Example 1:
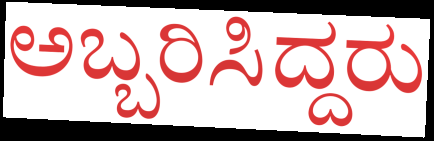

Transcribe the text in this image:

ಅಬ್ಬರಿಸಿದ್ದರು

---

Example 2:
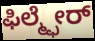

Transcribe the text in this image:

ಫಿಲ್ಮ್ಫೇರ್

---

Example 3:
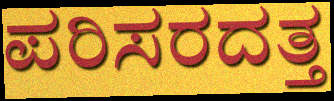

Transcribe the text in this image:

ಪರಿಸರದತ್ತ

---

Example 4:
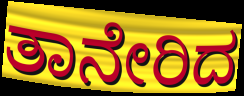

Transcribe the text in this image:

ತಾನೇರಿದ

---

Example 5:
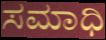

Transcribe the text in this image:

ಸಮಾಧಿ